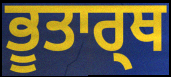
ਭੂਤਾਰ੍ਥ